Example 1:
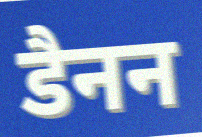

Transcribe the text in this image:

डैनन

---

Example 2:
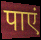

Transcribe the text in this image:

पाएं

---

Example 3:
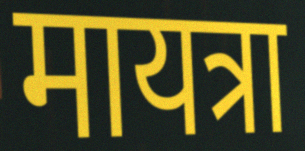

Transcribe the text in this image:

मायत्रा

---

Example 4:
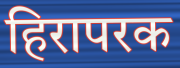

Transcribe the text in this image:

हिरापरक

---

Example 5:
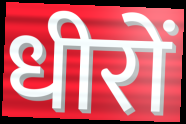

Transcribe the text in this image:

धीरों